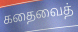
கதைவைத்